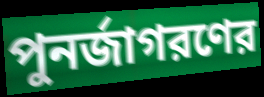
পুনর্জাগরণের